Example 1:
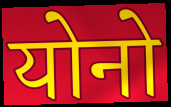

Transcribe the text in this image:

योनो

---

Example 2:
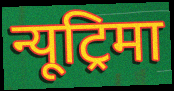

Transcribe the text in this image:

न्यूट्रिमा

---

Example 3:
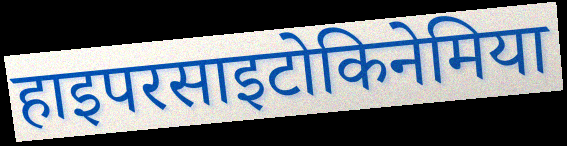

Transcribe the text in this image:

हाइपरसाइटोकिनेमिया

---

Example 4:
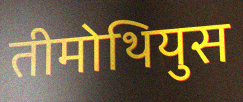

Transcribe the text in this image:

तीमोथियुस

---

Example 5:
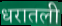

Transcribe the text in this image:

धरातली